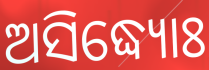
ଅସିଦ୍ଧ୍ୟୋଃ